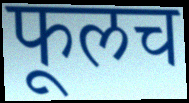
फूलच